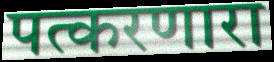
पत्करणारा